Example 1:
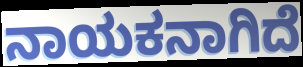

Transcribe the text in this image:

ನಾಯಕನಾಗಿದೆ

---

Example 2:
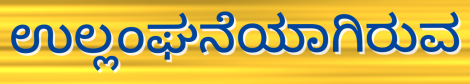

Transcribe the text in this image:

ಉಲ್ಲಂಘನೆಯಾಗಿರುವ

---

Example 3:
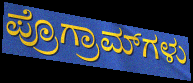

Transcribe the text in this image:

ಪ್ರೊಗ್ರಾಮ್‌ಗಳು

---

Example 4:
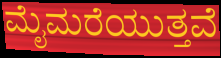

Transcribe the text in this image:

ಮೈಮರೆಯುತ್ತವೆ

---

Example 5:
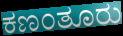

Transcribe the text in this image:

ಕಣಂತೂರು